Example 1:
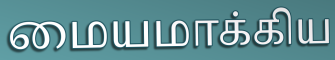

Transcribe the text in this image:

மையமாக்கிய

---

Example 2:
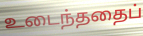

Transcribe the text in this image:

உடைந்ததைப்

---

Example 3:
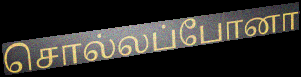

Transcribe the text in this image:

சொல்லப்போனா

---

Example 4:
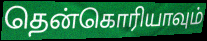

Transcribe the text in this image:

தென்கொரியாவும்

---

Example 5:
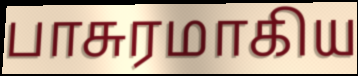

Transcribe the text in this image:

பாசுரமாகிய